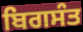
ਬਿਗਸੰਤ